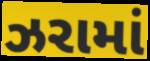
ઝરામાં